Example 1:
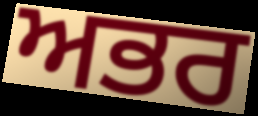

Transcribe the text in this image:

ਅਭਰ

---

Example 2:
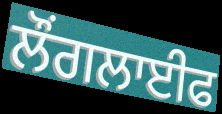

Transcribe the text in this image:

ਲੌਂਗਲਾਈਫ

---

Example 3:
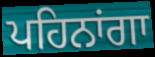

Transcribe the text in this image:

ਪਹਿਨਾਂਗਾ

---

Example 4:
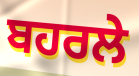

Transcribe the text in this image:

ਬਹਰਲੇ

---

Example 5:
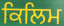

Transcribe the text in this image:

ਕਿਲਿਮ